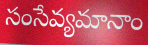
సంసేవ్యమానాం